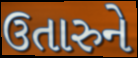
ઉતારુને